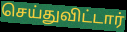
செய்துவிட்டார்